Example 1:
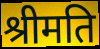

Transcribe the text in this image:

श्रीमति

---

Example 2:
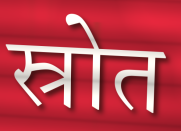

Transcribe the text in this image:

स्रोत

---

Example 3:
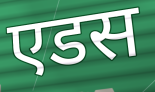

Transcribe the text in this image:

एडस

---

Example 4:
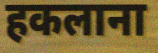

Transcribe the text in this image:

हकलाना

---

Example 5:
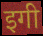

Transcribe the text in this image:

इगी